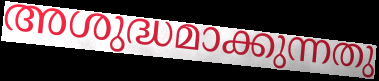
അശുദ്ധമാക്കുന്നതു